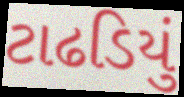
ટાઢડિયું